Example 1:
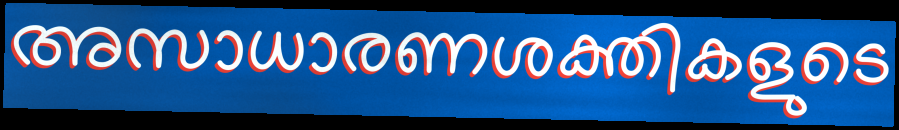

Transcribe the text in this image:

അസാധാരണശക്തികളുടെ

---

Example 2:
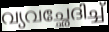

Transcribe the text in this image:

വ്യവച്ഛേദിച്ച്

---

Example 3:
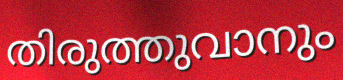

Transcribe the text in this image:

തിരുത്തുവാനും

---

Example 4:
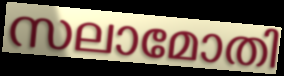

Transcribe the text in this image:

സലാമോതി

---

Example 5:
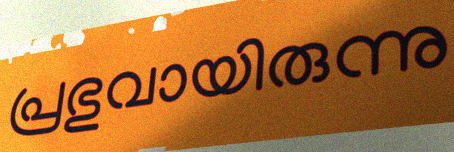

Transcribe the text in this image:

പ്രഭുവായിരുന്നു